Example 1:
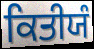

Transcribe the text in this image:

ਕਿਤੀਯੰ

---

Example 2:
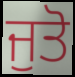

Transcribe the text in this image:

ਜੁਤੋ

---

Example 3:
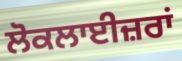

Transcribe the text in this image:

ਲੋਕਲਾਈਜ਼ਰਾਂ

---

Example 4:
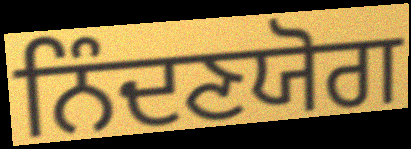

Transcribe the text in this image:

ਨਿੰਦਣਯੋਗ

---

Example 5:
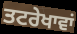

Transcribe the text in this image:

ਤਟਰੇਖਾਵਾਂ